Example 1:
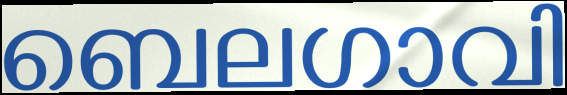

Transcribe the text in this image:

ബെലഗാവി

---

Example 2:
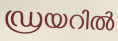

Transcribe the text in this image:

ഡ്രയറിൽ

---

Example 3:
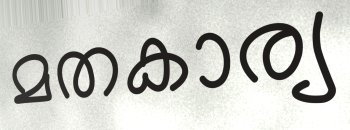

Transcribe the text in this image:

മതകാര്യ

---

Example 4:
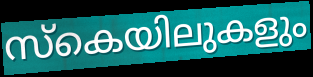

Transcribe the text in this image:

സ്കെയിലുകളും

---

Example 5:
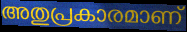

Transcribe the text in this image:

അതുപ്രകാരമാണ്